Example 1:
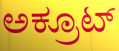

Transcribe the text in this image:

ಅಕ್ರೂಟ್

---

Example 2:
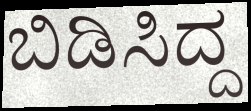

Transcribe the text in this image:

ಬಿಡಿಸಿದ್ದ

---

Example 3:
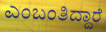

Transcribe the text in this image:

ಎಂಬಂತಿದ್ದಾರೆ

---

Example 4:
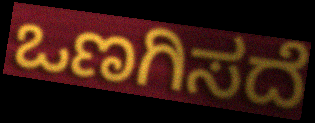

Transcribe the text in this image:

ಒಣಗಿಸದೆ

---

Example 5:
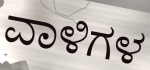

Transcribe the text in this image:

ವಾಳಿಗಳ